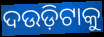
ଦଉଡ଼ିଟାକୁ